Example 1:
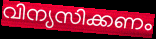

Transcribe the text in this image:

വിന്യസിക്കണം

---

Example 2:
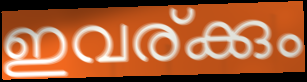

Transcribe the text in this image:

ഇവര്ക്കും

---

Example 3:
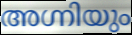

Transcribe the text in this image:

അഗ്നിയും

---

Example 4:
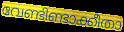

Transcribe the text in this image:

വേണ്ടിണ്ടാക്കീതാ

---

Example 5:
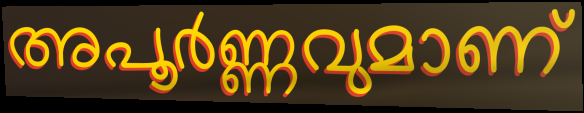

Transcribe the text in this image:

അപൂർണ്ണവുമാണ്